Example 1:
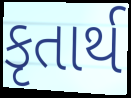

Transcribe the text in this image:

કૃતાર્થ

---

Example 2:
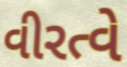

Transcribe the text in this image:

વીરત્વે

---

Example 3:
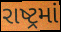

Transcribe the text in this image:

રાષ્ટ્રમાં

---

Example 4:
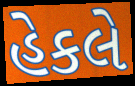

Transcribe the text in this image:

હેકલે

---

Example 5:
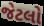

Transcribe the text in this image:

જેટલો